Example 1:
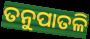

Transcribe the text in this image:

ତନୁପାତଳି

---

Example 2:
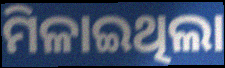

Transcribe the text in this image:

ମିଳାଇଥିଲା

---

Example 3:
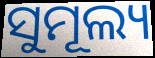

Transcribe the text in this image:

ସୁମୂଲ୍ୟ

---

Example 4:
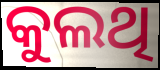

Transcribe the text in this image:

କୁଲଥି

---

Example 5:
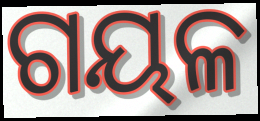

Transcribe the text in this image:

ଗୟଳ